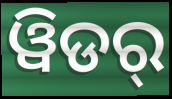
ୱିଡର୍